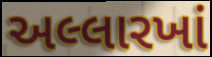
અલ્લારખાં